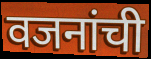
वजनांची